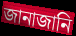
জানাজানি